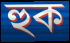
হুক